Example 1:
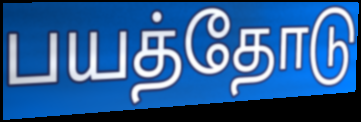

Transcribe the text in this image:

பயத்தோடு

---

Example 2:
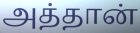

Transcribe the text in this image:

அத்தான்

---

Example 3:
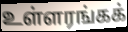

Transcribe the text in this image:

உள்ளரங்கக்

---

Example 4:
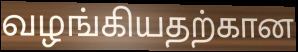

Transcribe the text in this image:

வழங்கியதற்கான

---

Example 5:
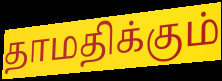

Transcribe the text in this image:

தாமதிக்கும்